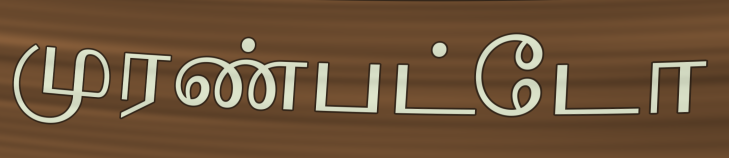
முரண்பட்டோ